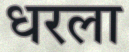
धरला